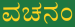
ವಚನಂ